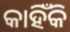
କାହିଁକି